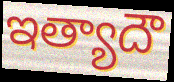
ఇత్యాదౌ